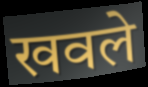
खवले